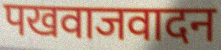
पखवाजवादन